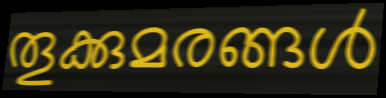
തൂക്കുമരങ്ങൾ